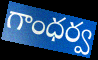
గాంధర్వ